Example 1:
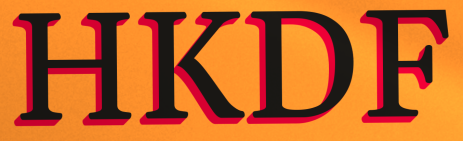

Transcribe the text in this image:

HKDF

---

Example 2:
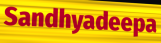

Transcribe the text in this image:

Sandhyadeepa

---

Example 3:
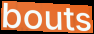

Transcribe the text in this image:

bouts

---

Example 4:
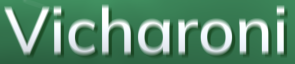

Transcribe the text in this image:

Vicharoni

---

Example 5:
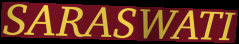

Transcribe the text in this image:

SARASWATI